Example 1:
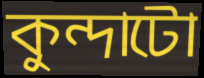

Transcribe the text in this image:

কুন্দাটো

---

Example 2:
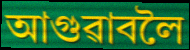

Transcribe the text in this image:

আগুৱাবলৈ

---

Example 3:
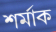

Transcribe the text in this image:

শৰ্মাক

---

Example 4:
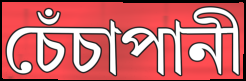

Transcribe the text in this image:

চেঁচাপানী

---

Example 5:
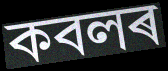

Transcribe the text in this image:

কবলৰ